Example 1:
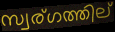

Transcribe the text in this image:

സ്വര്ഗത്തില്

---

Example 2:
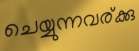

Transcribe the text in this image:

ചെയ്യുന്നവര്ക്കു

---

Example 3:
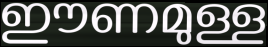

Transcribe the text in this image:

ഈണമുള്ള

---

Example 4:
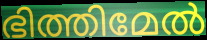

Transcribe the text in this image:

ഭിത്തിമേൽ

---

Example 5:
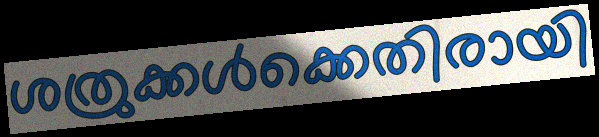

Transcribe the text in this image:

ശത്രുക്കൾക്കെതിരായി